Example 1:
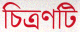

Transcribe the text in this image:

চিত্রণটি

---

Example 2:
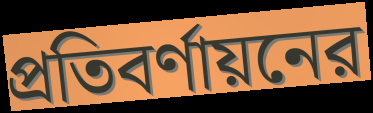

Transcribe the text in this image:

প্রতিবর্ণায়নের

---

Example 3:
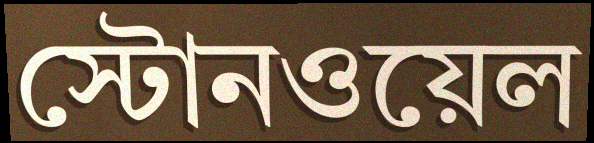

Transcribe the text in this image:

স্টোনওয়েল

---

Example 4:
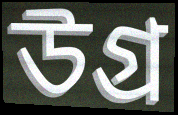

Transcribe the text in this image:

উগ্র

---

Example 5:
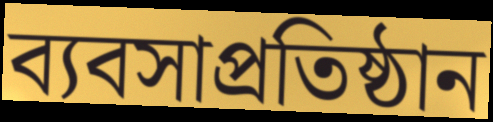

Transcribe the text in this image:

ব্যবসাপ্রতিষ্ঠান